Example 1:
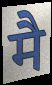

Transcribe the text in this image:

मै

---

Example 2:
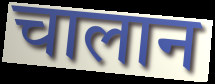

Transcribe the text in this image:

चालान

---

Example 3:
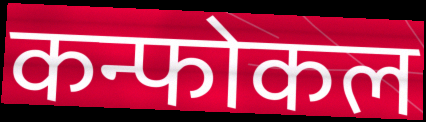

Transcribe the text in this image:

कन्फोकल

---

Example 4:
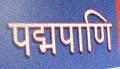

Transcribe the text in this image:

पद्मपाणि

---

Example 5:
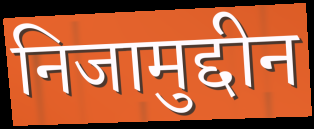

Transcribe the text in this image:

निजामुद्दीन